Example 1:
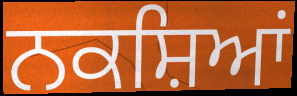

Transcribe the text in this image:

ਨਕਸ਼ਿਆਂ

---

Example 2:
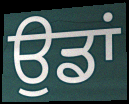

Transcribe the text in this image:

ਉਡਾਂ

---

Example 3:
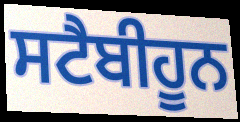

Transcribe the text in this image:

ਸਟੈਬੀਹੂਨ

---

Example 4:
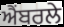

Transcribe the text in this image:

ਐਂਬਰਲੇ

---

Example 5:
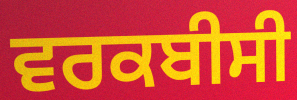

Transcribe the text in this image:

ਵਰਕਬੀਸੀ